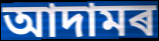
আদামৰ